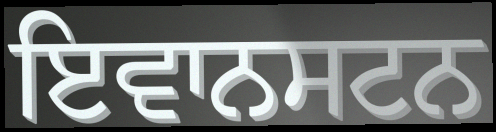
ਇਵਾਨਸਟਨ